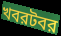
খবরটবর